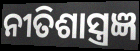
ନୀତିଶାସ୍ତ୍ରଜ୍ଞ